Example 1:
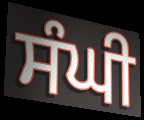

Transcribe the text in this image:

ਸੰਘੀ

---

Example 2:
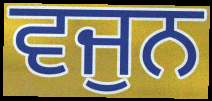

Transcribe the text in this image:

ਵਜੁਨ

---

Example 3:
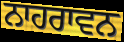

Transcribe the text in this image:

ਨਾਹਰਾਵਨ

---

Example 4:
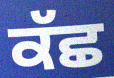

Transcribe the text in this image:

ਕੱਛ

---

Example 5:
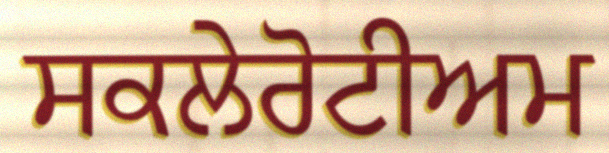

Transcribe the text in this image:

ਸਕਲੇਰੋਟੀਅਮ